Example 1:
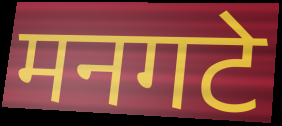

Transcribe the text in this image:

मनगटे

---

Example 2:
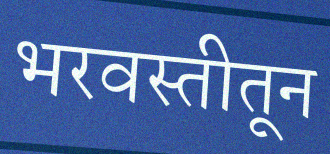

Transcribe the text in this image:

भरवस्तीतून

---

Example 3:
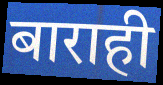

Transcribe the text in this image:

बाराही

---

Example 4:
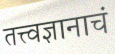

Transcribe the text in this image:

तत्त्वज्ञानाचं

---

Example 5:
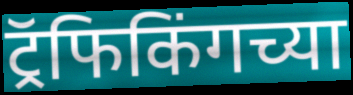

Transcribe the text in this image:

ट्रॅफिकिंगच्या